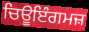
ਚਿਊਇੰਗਮਜ਼